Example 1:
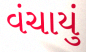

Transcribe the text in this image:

વંચાયું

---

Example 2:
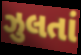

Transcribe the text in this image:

ઝુલતાં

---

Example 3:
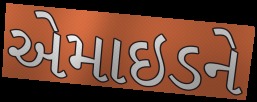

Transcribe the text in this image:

એમાઇડને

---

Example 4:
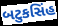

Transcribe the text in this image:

બટુકસિંહ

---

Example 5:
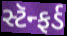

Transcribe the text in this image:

સ્ટૅન્ફર્ડ